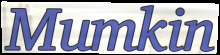
Mumkin